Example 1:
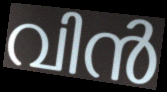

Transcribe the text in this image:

വിൻ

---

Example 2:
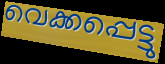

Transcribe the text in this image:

വെക്കപ്പെട്ടു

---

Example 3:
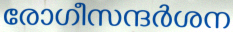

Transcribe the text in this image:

രോഗീസന്ദർശന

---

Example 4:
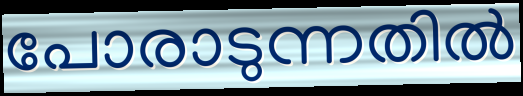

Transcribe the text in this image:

പോരാടുന്നതിൽ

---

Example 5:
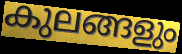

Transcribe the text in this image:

കുലങ്ങളും